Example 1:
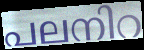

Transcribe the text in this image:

പലനിറ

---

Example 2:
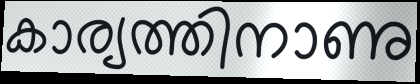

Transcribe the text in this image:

കാര്യത്തിനാണു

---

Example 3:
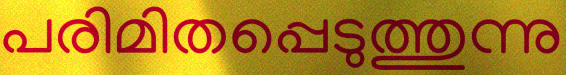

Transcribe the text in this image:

പരിമിതപ്പെടുത്തുന്നു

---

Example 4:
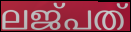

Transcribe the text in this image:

ലജ്പത്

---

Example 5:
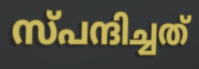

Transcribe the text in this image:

സ്പന്ദിച്ചത്